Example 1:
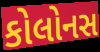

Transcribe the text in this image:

કોલોનસ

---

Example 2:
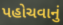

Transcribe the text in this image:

પહોચવાનું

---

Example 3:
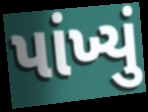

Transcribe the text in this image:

પાંખ્યું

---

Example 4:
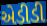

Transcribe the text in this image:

એડીડી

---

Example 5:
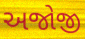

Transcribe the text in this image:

અજોજી